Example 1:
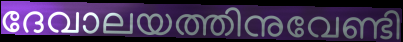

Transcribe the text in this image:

ദേവാലയത്തിനുവേണ്ടി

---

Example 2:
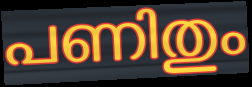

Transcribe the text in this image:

പണിതും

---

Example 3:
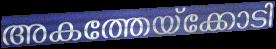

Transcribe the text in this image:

അകത്തേയ്‌ക്കോടി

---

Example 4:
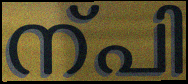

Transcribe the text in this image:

ന്പി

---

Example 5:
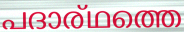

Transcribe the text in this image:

പദാര്ഥത്തെ